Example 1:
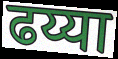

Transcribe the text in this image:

ढय्या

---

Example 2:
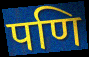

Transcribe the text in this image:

पणि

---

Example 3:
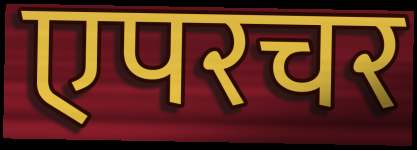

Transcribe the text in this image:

एपरचर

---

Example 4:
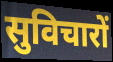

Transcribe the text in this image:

सुविचारों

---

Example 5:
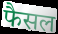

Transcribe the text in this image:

फैसल